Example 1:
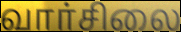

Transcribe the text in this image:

வார்சிலை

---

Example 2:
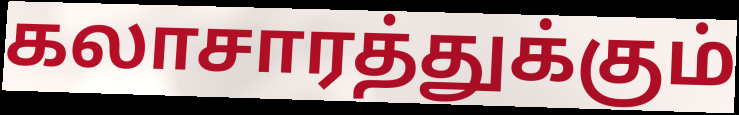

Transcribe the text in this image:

கலாசாரத்துக்கும்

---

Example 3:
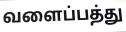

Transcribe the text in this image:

வளைப்பத்து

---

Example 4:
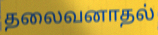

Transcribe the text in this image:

தலைவனாதல்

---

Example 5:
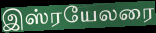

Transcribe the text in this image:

இஸ்ரயேலரை